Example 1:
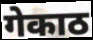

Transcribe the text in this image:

गेकाठ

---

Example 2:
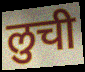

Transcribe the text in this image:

लुची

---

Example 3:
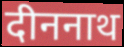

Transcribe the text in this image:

दीननाथ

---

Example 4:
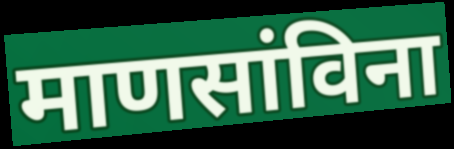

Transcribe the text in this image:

माणसांविना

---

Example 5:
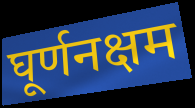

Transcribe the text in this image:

घूर्णनक्षम